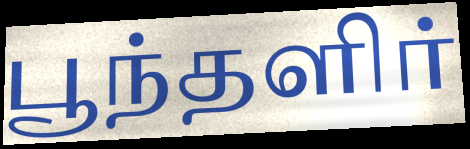
பூந்தளிர்